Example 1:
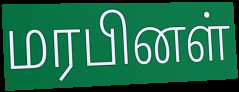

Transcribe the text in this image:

மரபினள்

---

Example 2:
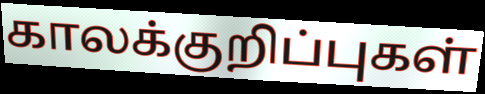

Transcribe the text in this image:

காலக்குறிப்புகள்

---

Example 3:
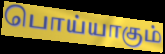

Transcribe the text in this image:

பொய்யாகும்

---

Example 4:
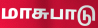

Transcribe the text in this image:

மாசுபாடு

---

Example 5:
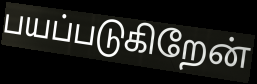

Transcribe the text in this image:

பயப்படுகிறேன்